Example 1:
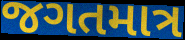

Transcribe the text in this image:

જગતમાત્ર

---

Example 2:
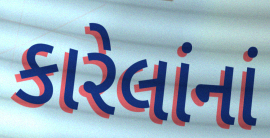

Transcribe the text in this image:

કારેલાંનાં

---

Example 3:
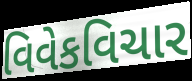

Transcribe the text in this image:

વિવેકવિચાર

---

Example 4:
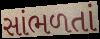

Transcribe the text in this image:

સાંભળતાં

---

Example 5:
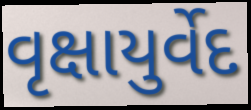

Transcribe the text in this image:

વૃક્ષાયુર્વેદ